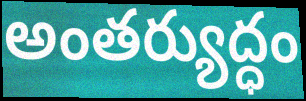
అంతర్యుద్ధం